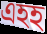
এহহ